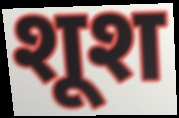
शूश